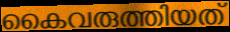
കൈവരുത്തിയത്